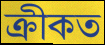
ক্ৰীকত